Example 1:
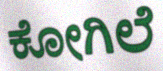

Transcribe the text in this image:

ಕೋಗಿಲೆ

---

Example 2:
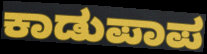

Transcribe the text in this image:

ಕಾಡುಪಾಪ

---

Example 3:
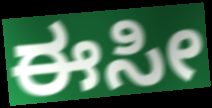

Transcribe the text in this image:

ಈಸೀ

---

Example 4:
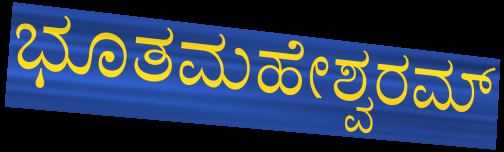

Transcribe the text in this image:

ಭೂತಮಹೇಶ್ವರಮ್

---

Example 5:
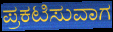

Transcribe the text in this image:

ಪ್ರಕಟಿಸುವಾಗ